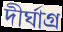
দীর্ঘাগ্র